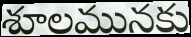
శూలమునకు